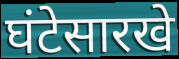
घंटेसारखे